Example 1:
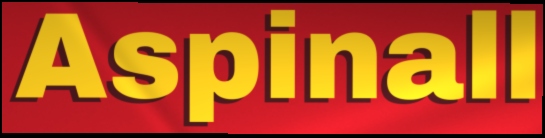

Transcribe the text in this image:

Aspinall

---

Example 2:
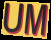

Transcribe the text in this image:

UM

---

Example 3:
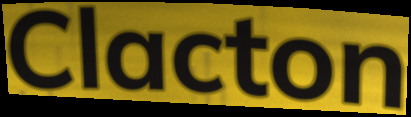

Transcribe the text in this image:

Clacton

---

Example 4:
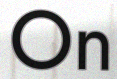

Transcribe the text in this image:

On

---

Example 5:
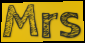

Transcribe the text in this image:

Mrs